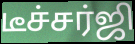
டீச்சர்ஜி